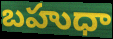
బహుధా